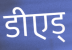
डीएड्